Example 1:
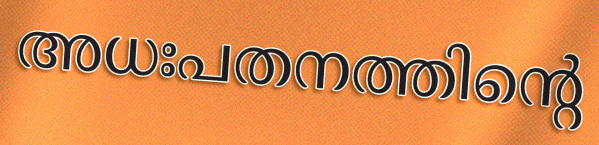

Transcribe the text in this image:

അധഃപതനത്തിന്റെ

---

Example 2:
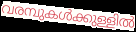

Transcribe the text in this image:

വരമ്പുകൾക്കുള്ളിൽ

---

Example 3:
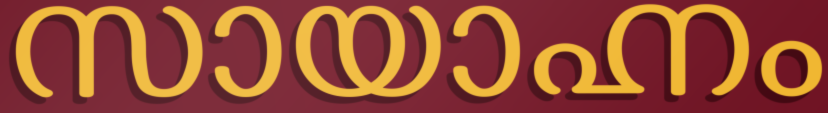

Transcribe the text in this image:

സായാഹ്നം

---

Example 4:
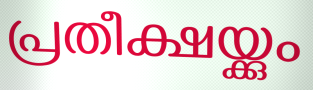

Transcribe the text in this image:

പ്രതീക്ഷയ്ക്കും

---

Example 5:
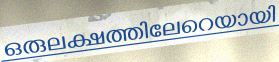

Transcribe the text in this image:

ഒരുലക്ഷത്തിലേറെയായി